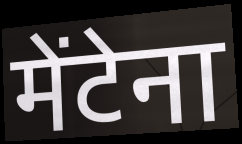
मेंटेना